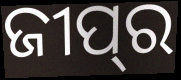
ଜୀପ୍‌ର